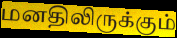
மனதிலிருக்கும்